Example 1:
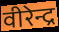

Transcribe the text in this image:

वीरेन्‍द्र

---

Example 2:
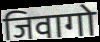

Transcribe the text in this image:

जिवागो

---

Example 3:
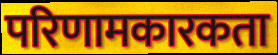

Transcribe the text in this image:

परिणामकारकता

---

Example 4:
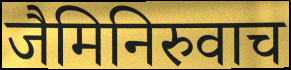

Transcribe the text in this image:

जैमिनिरुवाच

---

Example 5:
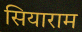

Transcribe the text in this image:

सियाराम